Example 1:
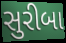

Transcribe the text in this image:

સુરીબા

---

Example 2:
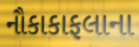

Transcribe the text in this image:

નૌકાકાફલાના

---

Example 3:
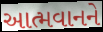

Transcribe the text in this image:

આત્મવાનને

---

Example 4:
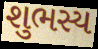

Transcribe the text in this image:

શુભસ્ય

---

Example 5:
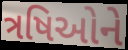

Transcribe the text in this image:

ત્રષિઓને